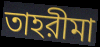
তাহরীমা